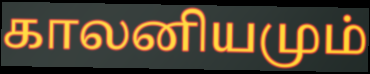
காலனியமும்